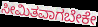
ಸೀಮಿತವಾಗಬೇಕೇ